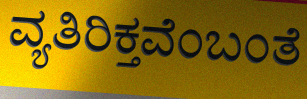
ವ್ಯತಿರಿಕ್ತವೆಂಬಂತೆ